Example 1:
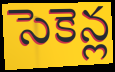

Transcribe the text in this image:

సెకెన్ల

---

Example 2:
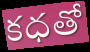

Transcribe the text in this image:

కధతో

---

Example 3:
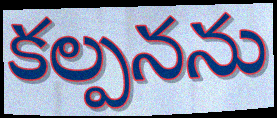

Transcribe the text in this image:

కల్పనను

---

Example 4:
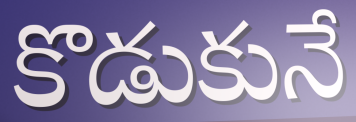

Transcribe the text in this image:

కొడుకునే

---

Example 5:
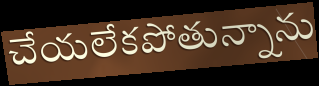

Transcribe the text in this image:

చేయలేకపోతున్నాను